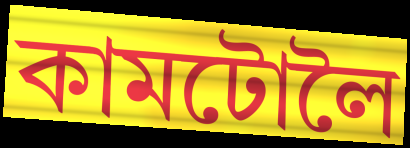
কামটোলৈ